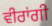
ਵੀਰਾਂਗੀ